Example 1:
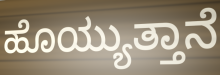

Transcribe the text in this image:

ಹೊಯ್ಯುತ್ತಾನೆ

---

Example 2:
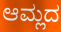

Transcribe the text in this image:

ಆಮ್ಲದ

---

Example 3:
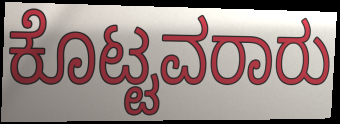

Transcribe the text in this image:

ಕೊಟ್ಟವರಾರು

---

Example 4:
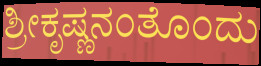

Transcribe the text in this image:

ಶ್ರೀಕೃಷ್ಣನಂತೊಂದು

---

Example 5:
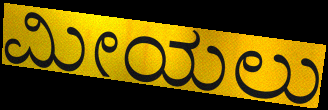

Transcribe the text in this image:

ಮೀಯಲು